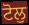
ਟੋਲੁ